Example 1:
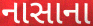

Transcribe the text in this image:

નાસાના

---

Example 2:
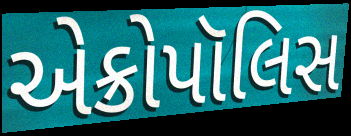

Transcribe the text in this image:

એક્રોપૉલિસ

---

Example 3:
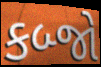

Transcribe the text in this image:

કબ્જો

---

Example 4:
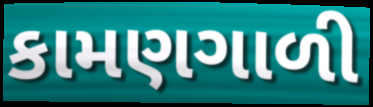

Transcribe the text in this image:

કામણગાળી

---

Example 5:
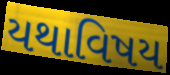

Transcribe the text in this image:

યથાવિષય